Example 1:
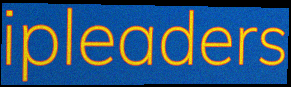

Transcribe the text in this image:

ipleaders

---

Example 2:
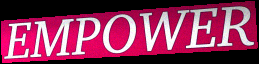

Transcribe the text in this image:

EMPOWER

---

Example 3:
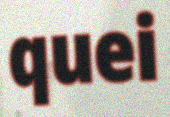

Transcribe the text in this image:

quei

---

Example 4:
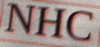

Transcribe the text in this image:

NHC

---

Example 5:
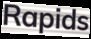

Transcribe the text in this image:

Rapids